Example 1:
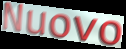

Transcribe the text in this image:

Nuovo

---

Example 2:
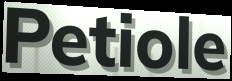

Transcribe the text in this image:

Petiole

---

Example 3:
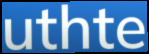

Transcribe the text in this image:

uthte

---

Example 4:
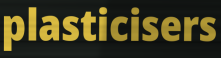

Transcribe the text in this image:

plasticisers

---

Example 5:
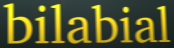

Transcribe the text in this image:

bilabial